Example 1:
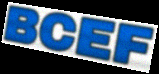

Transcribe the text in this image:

BCEF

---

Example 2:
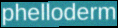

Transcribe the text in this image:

phelloderm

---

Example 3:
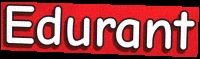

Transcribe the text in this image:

Edurant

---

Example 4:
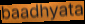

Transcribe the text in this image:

baadhyata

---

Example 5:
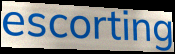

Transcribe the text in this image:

escorting